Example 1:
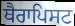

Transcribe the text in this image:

ਥੈਰਾਪਿਸਟ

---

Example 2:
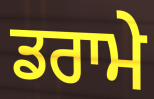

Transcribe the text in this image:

ਡਰਾਮੇ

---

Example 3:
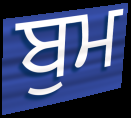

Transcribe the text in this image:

ਬੁਮ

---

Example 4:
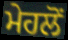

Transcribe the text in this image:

ਮੇਹਲੋਂ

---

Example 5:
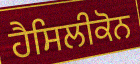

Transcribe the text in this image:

ਹੈਸਿਲੀਕੋਨ